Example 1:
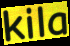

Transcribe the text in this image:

kila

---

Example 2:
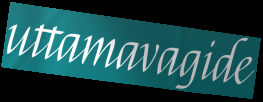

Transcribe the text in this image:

uttamavagide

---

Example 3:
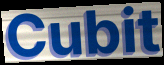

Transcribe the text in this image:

Cubit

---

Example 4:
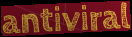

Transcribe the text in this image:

antiviral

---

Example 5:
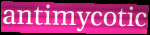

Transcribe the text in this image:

antimycotic